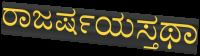
ರಾಜರ್ಷಯಸ್ತಥಾ